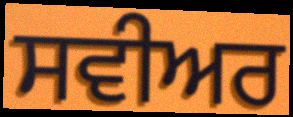
ਸਵੀਅਰ